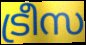
ട്രീസ